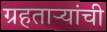
ग्रहताऱ्यांची